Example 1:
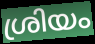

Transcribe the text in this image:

ശ്രിയം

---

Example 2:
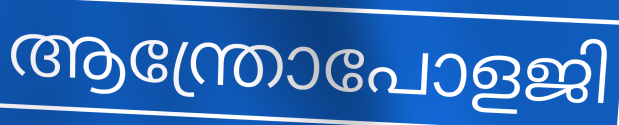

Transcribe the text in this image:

ആന്ത്രോപോളജി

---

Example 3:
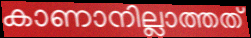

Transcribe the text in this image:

കാണാനില്ലാത്തത്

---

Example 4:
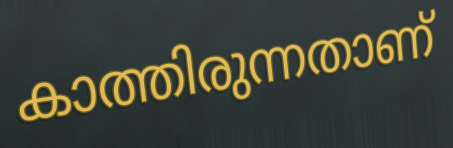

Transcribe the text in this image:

കാത്തിരുന്നതാണ്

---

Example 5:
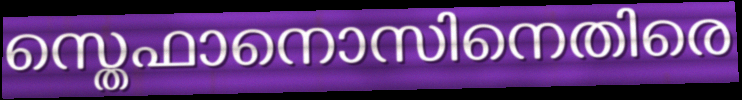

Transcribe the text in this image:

സ്തെഫാനൊസിനെതിരെ